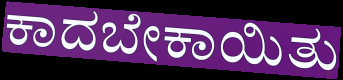
ಕಾದಬೇಕಾಯಿತು